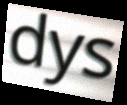
dys